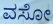
ವಸೋ